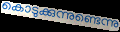
കൊടുക്കുന്നുണ്ടെന്നു